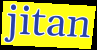
jitan